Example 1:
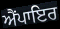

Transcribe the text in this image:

ਐਂਪਾਇਰ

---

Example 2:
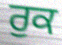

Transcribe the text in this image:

ਰੁਕ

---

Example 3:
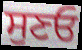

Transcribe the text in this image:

ਸੁਣਓ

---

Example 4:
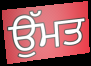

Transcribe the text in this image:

ਉੱਮਤ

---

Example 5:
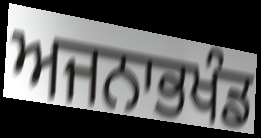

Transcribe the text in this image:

ਅਜਨਾਭਖੰਡ